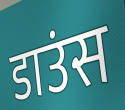
डाउंस